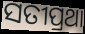
ସତୀପ୍ରଥା